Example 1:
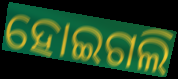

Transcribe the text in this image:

ହୋଇଗଲି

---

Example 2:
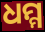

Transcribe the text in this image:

ଧମ୍ମ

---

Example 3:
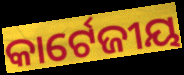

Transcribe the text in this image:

କାର୍ଟେଜୀୟ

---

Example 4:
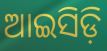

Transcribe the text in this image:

ଆଇସିଡ଼ି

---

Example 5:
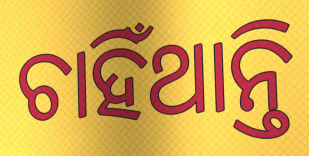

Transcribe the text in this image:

ଚାହିଁଥାନ୍ତି